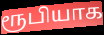
ரூபியாக